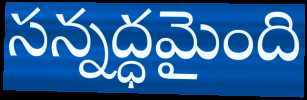
సన్నద్ధమైంది